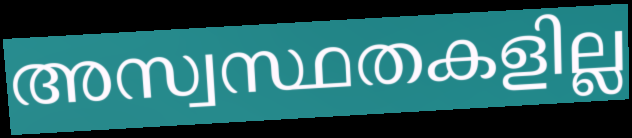
അസ്വസ്ഥതകളില്ല